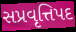
સપ્રવૃત્તિપદ